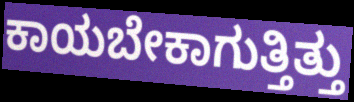
ಕಾಯಬೇಕಾಗುತ್ತಿತ್ತು